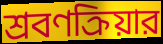
শ্রবণক্রিয়ার